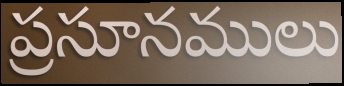
ప్రసూనములు